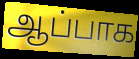
ஆப்பாக